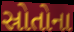
સ્રોતોના